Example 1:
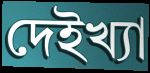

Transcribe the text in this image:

দেইখ্যা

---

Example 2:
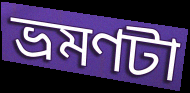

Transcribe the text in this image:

ভ্রমণটা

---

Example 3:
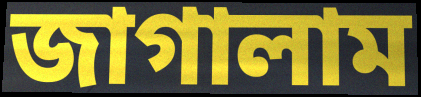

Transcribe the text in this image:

জাগালাম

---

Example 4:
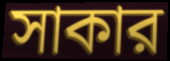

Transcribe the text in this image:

সাকার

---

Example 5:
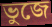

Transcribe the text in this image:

ভুজে